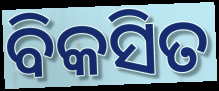
ବିକସିତ